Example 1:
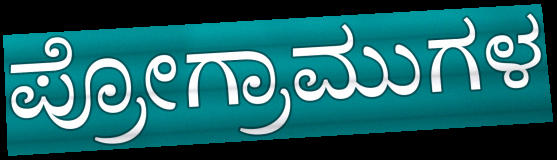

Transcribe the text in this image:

ಪ್ರೋಗ್ರಾಮುಗಳ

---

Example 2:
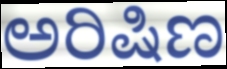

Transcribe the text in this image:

ಅರಿಷಿಣ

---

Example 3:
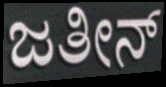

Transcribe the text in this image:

ಜತೀನ್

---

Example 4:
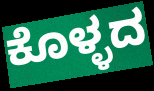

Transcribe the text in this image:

ಕೊಳ್ಳದ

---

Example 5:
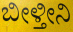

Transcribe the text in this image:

ಬೀಳ್ತೀನಿ